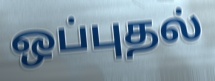
ஒப்புதல்